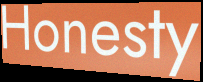
Honesty